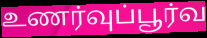
உணர்வுப்பூர்வ